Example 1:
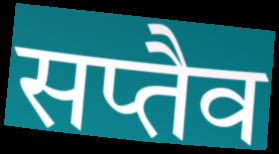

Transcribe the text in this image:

सप्तैव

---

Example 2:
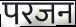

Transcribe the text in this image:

परजन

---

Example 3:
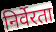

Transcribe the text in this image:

निर्वेरता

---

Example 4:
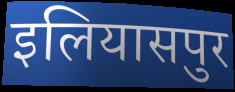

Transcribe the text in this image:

इलियासपुर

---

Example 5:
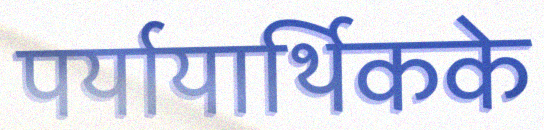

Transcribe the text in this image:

पर्यायार्थिकके